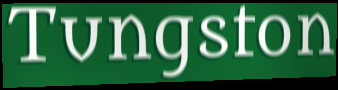
Tungston